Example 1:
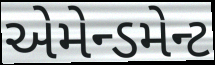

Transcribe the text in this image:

એમેન્ડમેન્ટ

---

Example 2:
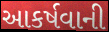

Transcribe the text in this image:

આકર્ષવાની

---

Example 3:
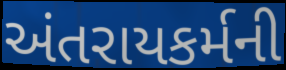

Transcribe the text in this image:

અંતરાયકર્મની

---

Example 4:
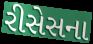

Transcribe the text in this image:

રીસેસના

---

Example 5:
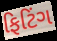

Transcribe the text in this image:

ફિટિંગ